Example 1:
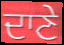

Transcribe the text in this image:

ਦਾਣੇ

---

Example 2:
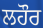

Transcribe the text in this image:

ਲਹੌਰ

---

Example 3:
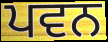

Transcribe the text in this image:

ਪਵਨ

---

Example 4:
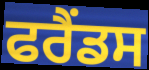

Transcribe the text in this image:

ਫਰੈਂਡਸ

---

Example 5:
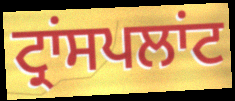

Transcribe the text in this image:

ਟ੍ਰਾਂਸਪਲਾਂਟ